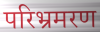
परिभ्रमरण